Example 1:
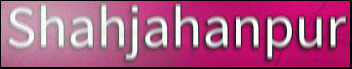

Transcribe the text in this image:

Shahjahanpur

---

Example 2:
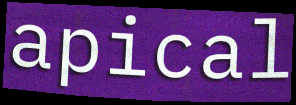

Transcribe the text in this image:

apical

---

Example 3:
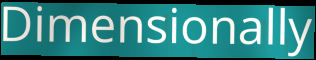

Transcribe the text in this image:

Dimensionally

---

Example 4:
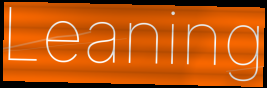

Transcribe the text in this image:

Leaning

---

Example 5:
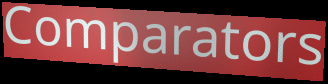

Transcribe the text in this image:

Comparators